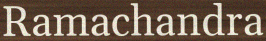
Ramachandra